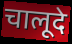
चालूदे